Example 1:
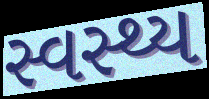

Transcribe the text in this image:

સ્વસ્થ્ય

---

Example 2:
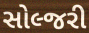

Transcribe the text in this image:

સોલ્જરી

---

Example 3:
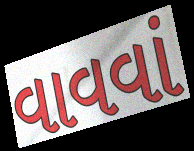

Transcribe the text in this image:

વાવવાં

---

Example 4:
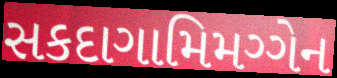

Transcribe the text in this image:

સકદાગામિમગ્ગેન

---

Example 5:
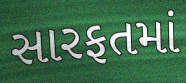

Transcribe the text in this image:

સારફતમાં